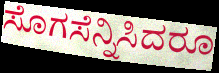
ಸೊಗಸೆನ್ನಿಸಿದರೂ